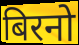
बिरनो